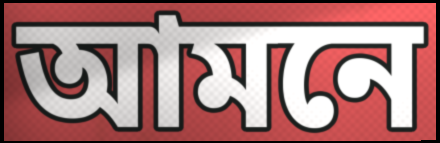
আমনে